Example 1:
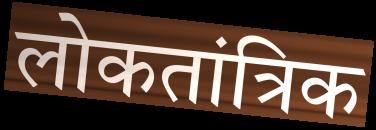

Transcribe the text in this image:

लोकतांत्रिक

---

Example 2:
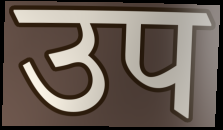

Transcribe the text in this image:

उप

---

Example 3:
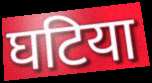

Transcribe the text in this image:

घटिया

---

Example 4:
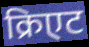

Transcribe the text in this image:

क्रिएट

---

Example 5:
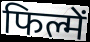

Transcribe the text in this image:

फिल्में